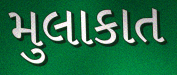
મુલાકાત